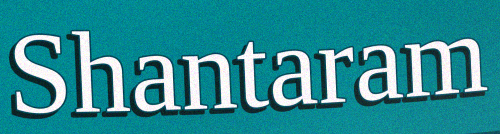
Shantaram